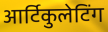
आर्टिकुलेटिंग